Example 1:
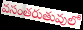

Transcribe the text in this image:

వసంతరుతువులో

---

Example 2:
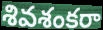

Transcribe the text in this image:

శివశంకరా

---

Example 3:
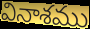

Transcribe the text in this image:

వినాశము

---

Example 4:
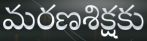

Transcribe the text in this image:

మరణశిక్షకు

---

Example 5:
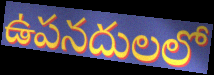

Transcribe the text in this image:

ఉపనదులలో